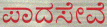
ಪಾದಸೇವೆ